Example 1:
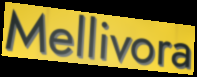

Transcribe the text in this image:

Mellivora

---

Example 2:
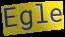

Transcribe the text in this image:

Egle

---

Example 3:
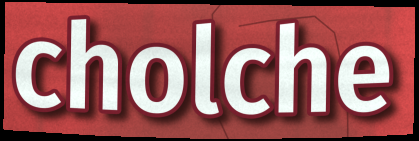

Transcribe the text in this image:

cholche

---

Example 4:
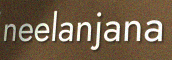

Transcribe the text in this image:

neelanjana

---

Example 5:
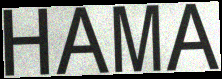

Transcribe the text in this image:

HAMA